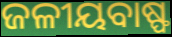
ଜଳୀୟବାଷ୍ଫ